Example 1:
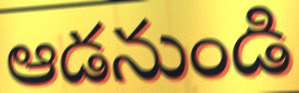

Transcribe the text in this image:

ఆడనుండి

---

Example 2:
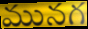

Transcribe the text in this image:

మునగ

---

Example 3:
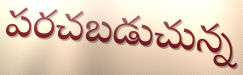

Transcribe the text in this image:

పరచబడుచున్న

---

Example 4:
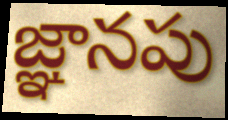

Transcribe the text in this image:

జ్ఞానపు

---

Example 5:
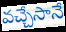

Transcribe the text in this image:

వచ్చేసానే